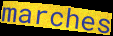
marches